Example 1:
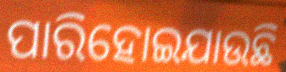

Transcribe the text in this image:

ପାରିହୋଇଯାଉଛି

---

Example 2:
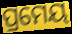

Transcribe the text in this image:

ପ୍ରମେୟ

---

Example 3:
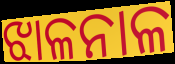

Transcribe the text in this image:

ଝାଳନାଳ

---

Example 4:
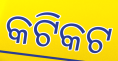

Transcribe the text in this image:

କଟିକଟ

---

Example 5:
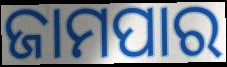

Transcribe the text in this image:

ଜାମପାର